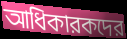
আধিকারকদের